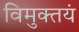
विमुक्तयं